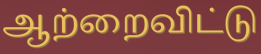
ஆற்றைவிட்டு